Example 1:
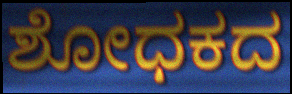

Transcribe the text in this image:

ಶೋಧಕದ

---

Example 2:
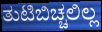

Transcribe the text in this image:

ತುಟಿಬಿಚ್ಚಲಿಲ್ಲ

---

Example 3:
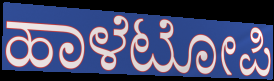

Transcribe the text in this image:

ಹಾಳೆಟೋಪಿ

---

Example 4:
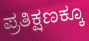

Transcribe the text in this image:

ಪ್ರತಿಕ್ಷಣಕ್ಕೂ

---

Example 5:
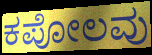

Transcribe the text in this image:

ಕಪೋಲವು